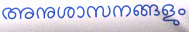
അനുശാസനങ്ങളും